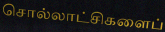
சொல்லாட்சிகளைப்